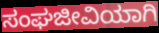
ಸಂಘಜೀವಿಯಾಗಿ